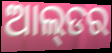
ଆଲ୍‌ଡର